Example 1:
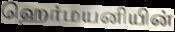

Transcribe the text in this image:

ஹெர்மயனியின்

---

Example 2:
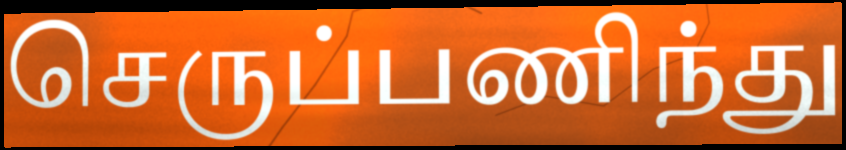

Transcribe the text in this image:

செருப்பணிந்து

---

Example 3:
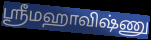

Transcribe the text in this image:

ஸ்ரீமஹாவிஷ்ணு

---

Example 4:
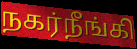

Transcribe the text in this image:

நகர்நீங்கி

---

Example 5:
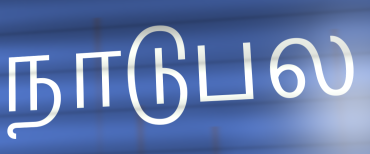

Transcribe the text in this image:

நாடுபல